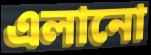
এলানো